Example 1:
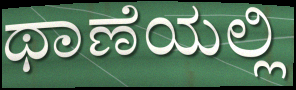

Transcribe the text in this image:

ಥಾಣೆಯಲ್ಲಿ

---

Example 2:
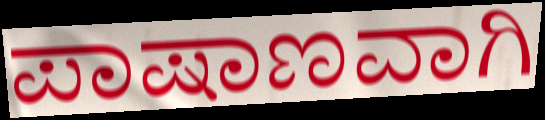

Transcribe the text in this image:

ಪಾಷಾಣವಾಗಿ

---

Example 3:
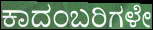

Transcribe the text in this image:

ಕಾದಂಬರಿಗಳೇ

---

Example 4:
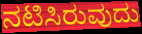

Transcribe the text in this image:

ನಟಿಸಿರುವುದು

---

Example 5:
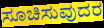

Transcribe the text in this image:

ಸೂಚಿಸುವುದರ